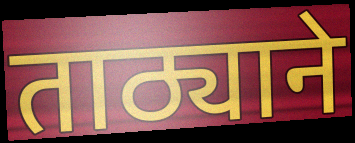
ताठ्याने